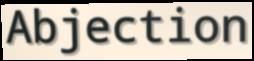
Abjection